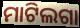
ମାଟିଲଗା